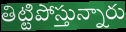
తిట్టిపోస్తున్నారు